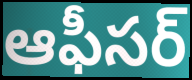
ఆఫీసర్